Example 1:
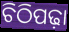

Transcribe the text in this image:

ଚିଠିପଢ଼ା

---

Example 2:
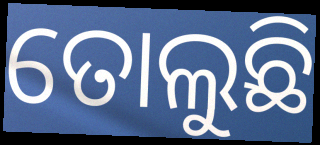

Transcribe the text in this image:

ତୋଲୁଛି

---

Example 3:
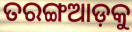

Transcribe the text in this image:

ତରଙ୍ଗଆଡ଼କୁ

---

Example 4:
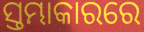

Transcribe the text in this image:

ସ୍ତମ୍ଭାକାରରେ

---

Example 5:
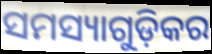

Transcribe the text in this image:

ସମସ୍ୟାଗୁଡ଼ିକର